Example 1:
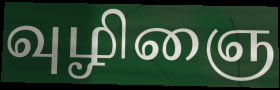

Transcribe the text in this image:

வுழிஞை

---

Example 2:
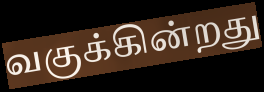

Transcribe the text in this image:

வகுக்கின்றது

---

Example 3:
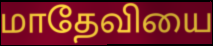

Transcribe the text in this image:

மாதேவியை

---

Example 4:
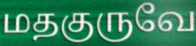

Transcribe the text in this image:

மதகுருவே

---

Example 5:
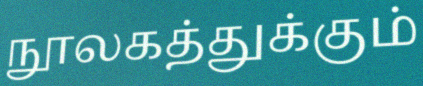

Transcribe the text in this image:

நூலகத்துக்கும்